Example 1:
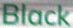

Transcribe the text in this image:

Black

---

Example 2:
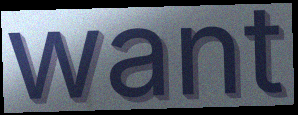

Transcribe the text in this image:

want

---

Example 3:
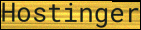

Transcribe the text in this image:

Hostinger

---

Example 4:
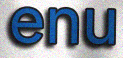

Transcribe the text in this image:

enu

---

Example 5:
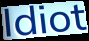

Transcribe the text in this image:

Idiot